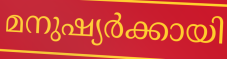
മനുഷ്യർക്കായി